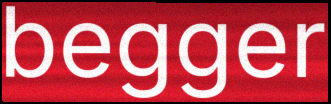
begger